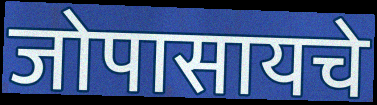
जोपासायचे